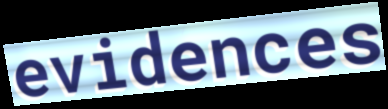
evidences